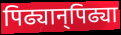
पिढ्यान्‌पिढ्या